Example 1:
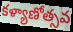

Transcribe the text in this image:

కళ్యాణోత్సవ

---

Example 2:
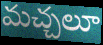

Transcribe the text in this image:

మచ్చలూ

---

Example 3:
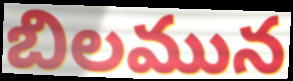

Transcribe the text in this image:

బిలమున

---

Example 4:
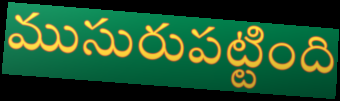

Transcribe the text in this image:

ముసురుపట్టింది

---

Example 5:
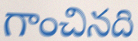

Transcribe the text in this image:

గాంచినది